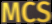
MCS